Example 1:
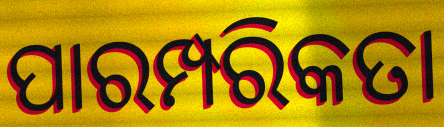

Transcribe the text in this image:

ପାରମ୍ପରିକତା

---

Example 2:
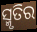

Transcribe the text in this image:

ସ୍ମୃତିର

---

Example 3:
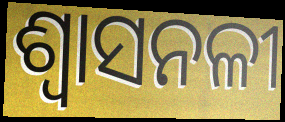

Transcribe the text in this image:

ଶ୍ଵାସନଳୀ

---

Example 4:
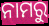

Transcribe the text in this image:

ନାମରୁ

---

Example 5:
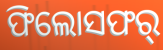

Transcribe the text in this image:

ଫିଲୋସଫର୍